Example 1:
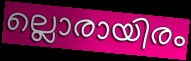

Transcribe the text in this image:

ല്ലൊരായിരം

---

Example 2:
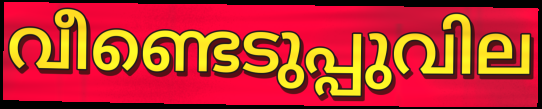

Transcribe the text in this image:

വീണ്ടെടുപ്പുവില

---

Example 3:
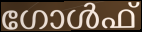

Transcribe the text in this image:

ഗോൾഫ്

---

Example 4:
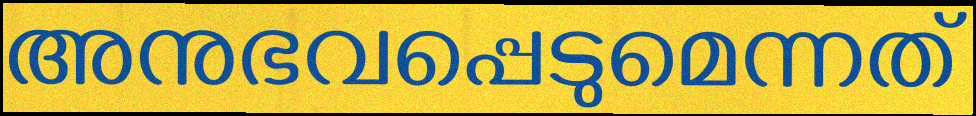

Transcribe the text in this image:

അനുഭവപ്പെടുമെന്നത്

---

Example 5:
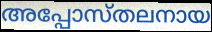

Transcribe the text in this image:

അപ്പോസ്തലനായ